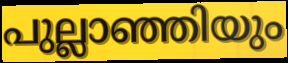
പുല്ലാഞ്ഞിയും